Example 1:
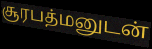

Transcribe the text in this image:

சூரபத்மனுடன்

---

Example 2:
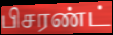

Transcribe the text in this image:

பிசரண்ட்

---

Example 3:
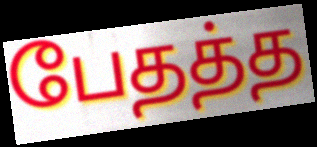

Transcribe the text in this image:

பேதத்த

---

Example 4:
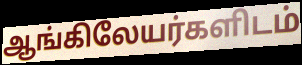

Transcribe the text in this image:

ஆங்கிலேயர்களிடம்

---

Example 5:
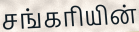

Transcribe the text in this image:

சங்கரியின்